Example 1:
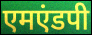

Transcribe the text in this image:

एमएंडपी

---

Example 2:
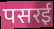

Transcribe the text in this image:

पसरई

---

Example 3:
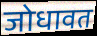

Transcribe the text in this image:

जोधावत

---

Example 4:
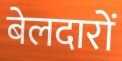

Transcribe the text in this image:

बेलदारों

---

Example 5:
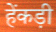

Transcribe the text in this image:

हेंकड़ी